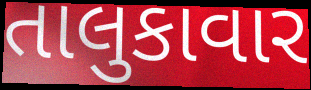
તાલુકાવાર